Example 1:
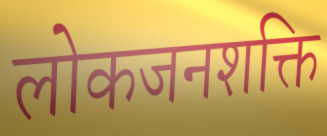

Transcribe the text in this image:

लोकजनशक्ति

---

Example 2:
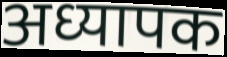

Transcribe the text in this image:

अध्‍यापक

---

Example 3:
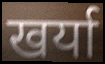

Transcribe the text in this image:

खर्या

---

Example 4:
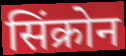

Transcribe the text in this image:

सिंक्रोन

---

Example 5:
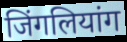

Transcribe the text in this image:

जिंगलियांग